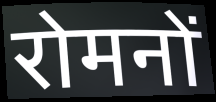
रोमनों